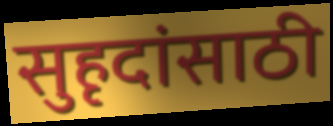
सुहृदांसाठी